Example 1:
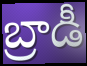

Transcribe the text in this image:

బ్రాడీ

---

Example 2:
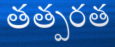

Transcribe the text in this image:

తత్పరత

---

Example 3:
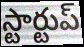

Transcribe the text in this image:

స్టార్టుప్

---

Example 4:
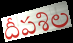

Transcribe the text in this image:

దీపశిల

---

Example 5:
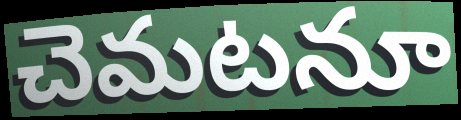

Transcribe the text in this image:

చెమటనూ